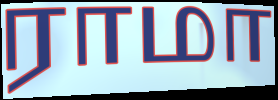
ராமா